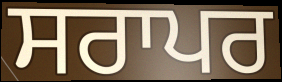
ਸਰਾਪਰ